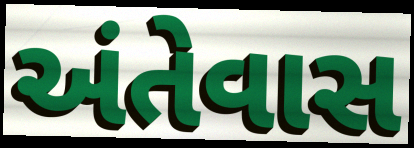
અંતેવાસ